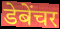
डेबेंचर